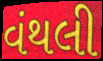
વંથલી